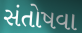
સંતોષવા